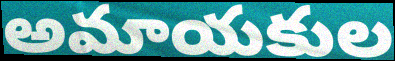
అమాయకుల